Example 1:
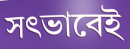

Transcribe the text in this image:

সৎভাবেই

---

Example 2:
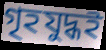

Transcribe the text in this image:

গৃহযুদ্ধই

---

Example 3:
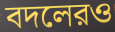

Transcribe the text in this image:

বদলেরও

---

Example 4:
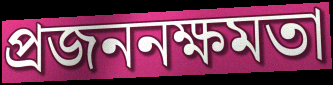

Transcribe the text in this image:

প্রজননক্ষমতা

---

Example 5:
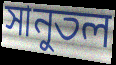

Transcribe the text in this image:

সানুতল